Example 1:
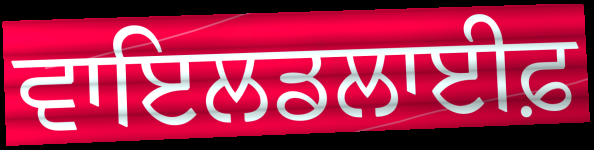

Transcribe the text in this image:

ਵਾਇਲਡਲਾਈਫ਼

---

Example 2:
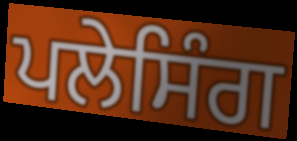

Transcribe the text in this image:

ਪਲੇਸਿੰਗ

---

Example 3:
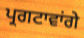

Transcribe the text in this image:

ਪ੍ਰਗਟਾਵਾਂਗੇ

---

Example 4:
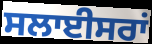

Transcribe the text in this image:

ਸਲਾਈਸਰਾਂ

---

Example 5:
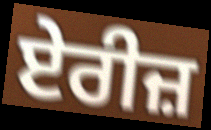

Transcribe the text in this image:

ਏਰੀਜ਼